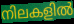
നിലകളിൽ